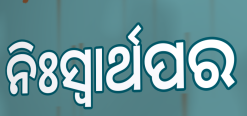
ନିଃସ୍ୱାର୍ଥପର